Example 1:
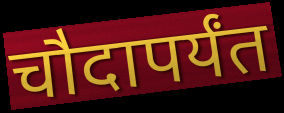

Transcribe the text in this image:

चौदापर्यंत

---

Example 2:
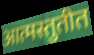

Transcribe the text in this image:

आत्मस्तुतीत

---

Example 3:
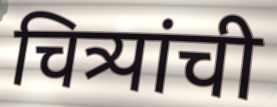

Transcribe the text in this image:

चित्र्यांची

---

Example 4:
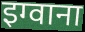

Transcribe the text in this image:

इग्वाना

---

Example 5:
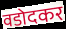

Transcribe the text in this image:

वडोदकर